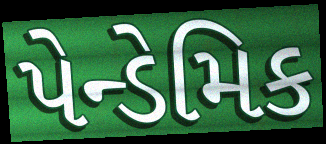
પેન્ડેમિક